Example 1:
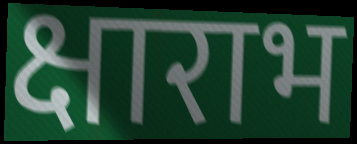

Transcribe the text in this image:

क्षाराभ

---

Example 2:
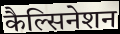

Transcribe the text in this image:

कैल्सिनेशन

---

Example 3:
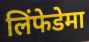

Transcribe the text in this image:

लिंफेडेमा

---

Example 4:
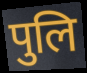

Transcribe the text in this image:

पुलि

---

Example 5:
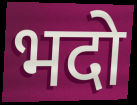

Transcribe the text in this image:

भदो